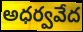
అధర్వవేద